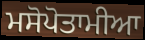
ਮਸੋਪੋਤਾਮੀਆ